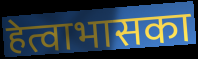
हेत्वाभासका